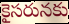
కైసరునకు